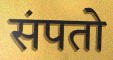
संपतो